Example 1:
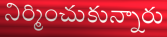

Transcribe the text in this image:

నిర్మించుకున్నారు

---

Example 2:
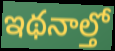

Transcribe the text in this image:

ఇథనాల్తో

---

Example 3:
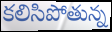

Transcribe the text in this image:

కలిసిపోతున్న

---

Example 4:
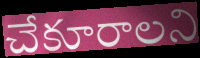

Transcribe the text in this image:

చేకూరాలని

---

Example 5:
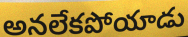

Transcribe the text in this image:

అనలేకపోయాడు